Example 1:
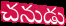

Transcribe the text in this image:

చనుడు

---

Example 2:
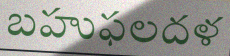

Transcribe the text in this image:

బహుఫలదళ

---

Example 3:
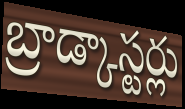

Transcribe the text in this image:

బ్రాడ్కాస్టర్లు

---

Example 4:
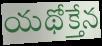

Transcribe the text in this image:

యథోక్తేన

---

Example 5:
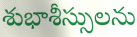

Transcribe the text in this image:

శుభాశీస్సులను